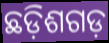
ଛଡ଼ିଶଗଡ଼